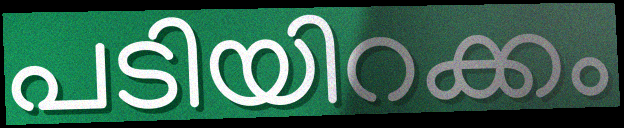
പടിയിറക്കം